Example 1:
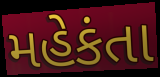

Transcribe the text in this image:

મહેકંતા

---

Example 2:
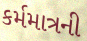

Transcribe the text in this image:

કર્મમાત્રની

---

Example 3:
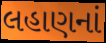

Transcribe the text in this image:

લહાણનાં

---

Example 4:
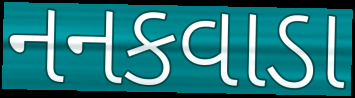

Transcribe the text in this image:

નનકવાડા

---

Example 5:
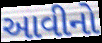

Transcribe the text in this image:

આવીનો